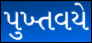
પુખ્તવયે